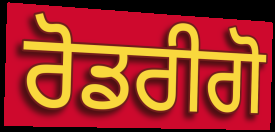
ਰੋਡਰੀਗੋ